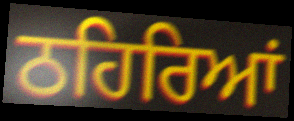
ਠਹਿਰਿਆਂ